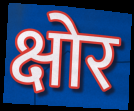
क्षोर